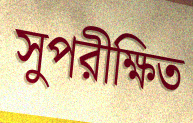
সুপরীক্ষিত